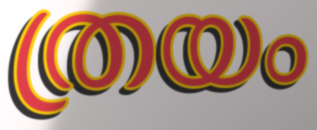
ത്രയം